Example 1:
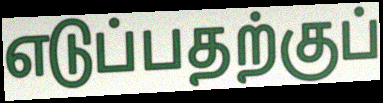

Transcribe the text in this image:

எடுப்பதற்குப்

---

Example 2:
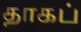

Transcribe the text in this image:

தாகப்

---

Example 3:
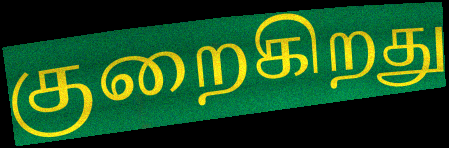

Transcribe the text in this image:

குறைகிறது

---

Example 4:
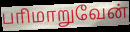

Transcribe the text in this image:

பரிமாறுவேன்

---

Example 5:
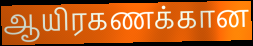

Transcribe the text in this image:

ஆயிரகணக்கான